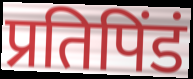
प्रतिपिंडं